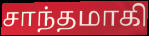
சாந்தமாகி